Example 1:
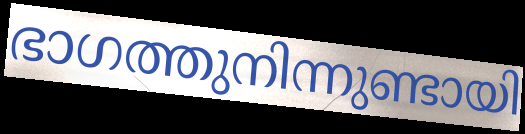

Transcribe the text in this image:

ഭാഗത്തുനിന്നുണ്ടായി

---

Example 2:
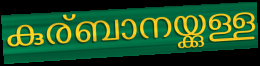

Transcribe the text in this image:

കുര്ബാനയ്ക്കുള്ള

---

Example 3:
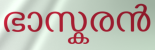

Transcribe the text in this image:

ഭാസ്കരൻ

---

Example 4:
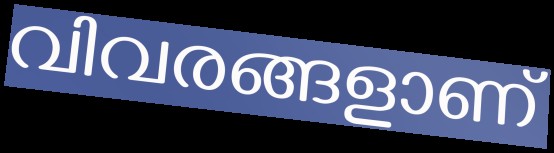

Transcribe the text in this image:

വിവരങ്ങളാണ്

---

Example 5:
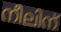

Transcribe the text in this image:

നീലിന്